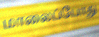
மாலைப்போது